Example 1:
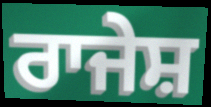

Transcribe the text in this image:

ਰਾਜੇਸ਼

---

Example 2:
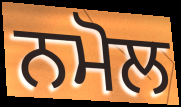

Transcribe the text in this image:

ਨਮੋਲ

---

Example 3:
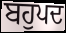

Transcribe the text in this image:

ਬਹੁਪਦ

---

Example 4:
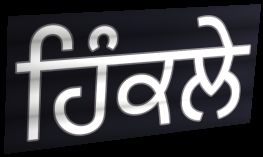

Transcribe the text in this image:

ਹਿੰਕਲੇ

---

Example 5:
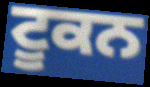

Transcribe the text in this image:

ਟੂਕਨ